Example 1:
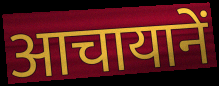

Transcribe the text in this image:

आचायानें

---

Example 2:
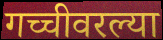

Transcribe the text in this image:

गच्चीवरल्या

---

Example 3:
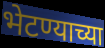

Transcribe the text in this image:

भेटण्याच्या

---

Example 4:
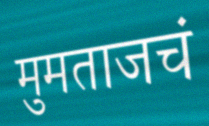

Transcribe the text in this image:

मुमताजचं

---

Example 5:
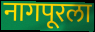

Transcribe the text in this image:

नागपूरला